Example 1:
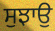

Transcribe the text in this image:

ਸੁਝਾਉ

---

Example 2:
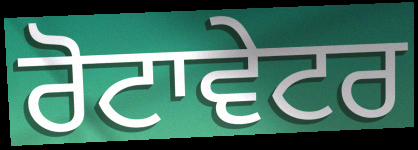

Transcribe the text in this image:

ਰੋਟਾਵੇਟਰ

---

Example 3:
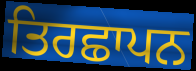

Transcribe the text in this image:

ਤਿਰਛਾਪਨ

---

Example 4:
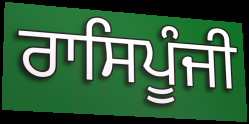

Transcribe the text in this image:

ਰਾਸਿਪੂੰਜੀ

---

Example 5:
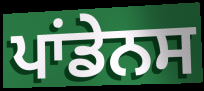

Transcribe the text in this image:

ਪਾਂਡੇਨਸ